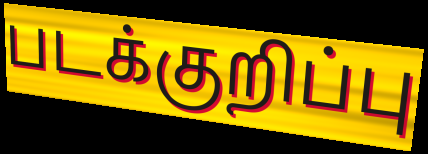
படக்குறிப்பு